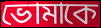
ভোমাকে